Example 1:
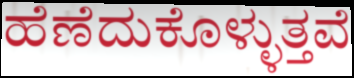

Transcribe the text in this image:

ಹೆಣೆದುಕೊಳ್ಳುತ್ತವೆ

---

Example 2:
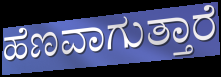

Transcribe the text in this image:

ಹೆಣವಾಗುತ್ತಾರೆ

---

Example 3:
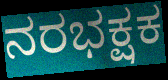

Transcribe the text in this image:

ನರಭಕ್ಷಕ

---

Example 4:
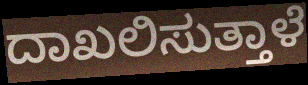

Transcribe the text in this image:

ದಾಖಲಿಸುತ್ತಾಳೆ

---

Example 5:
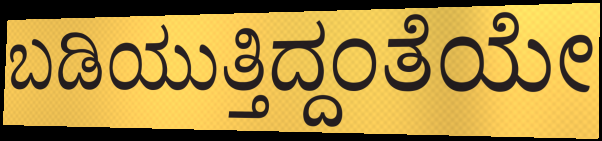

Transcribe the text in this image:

ಬಡಿಯುತ್ತಿದ್ದಂತೆಯೇ